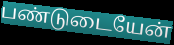
பண்டுடையேன்